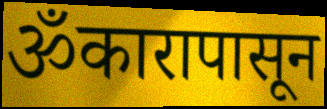
ॐकारापासून